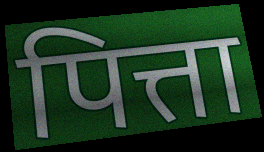
पित्ता